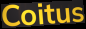
Coitus